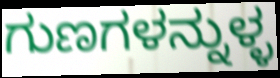
ಗುಣಗಳನ್ನುಳ್ಳ